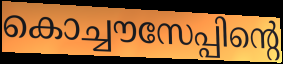
കൊച്ചൗസേപ്പിന്റെ